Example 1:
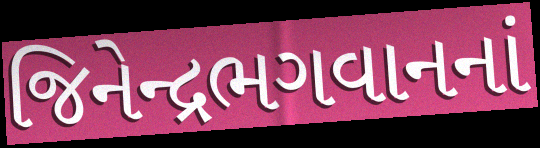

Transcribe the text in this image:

જિનેન્દ્રભગવાનનાં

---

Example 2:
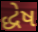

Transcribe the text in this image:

દ્ધેષ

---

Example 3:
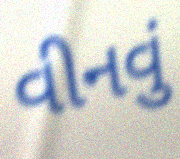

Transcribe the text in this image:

વીનવું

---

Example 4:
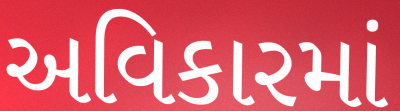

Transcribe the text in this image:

અવિકારમાં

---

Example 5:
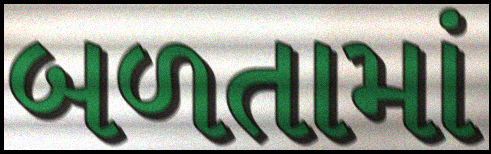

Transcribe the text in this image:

બળતામાં